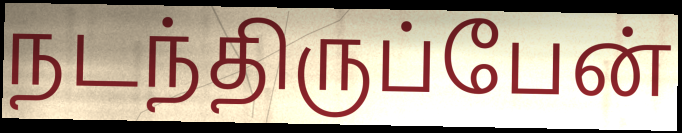
நடந்திருப்பேன்